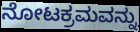
ನೋಟಕ್ರಮವನ್ನು